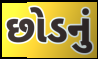
છોડનું